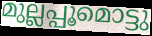
മുല്ലപ്പൂമൊട്ടു